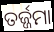
ତର୍ଜ୍ଜମା